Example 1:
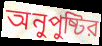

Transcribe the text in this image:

অনুপুষ্টির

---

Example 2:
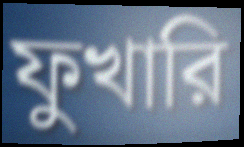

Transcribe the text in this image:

ফুখারি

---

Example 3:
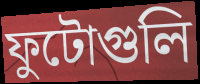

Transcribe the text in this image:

ফুটোগুলি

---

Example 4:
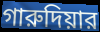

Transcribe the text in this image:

গারুদিয়ার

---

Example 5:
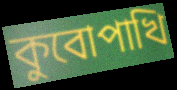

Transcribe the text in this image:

কুবোপাখি